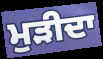
ਮੁੜੀਦਾ